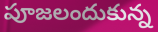
పూజలందుకున్న